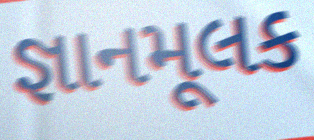
જ્ઞાનમૂલક